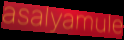
asalyamule